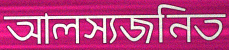
আলস্যজনিত